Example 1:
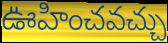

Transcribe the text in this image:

ఊహించవచ్చు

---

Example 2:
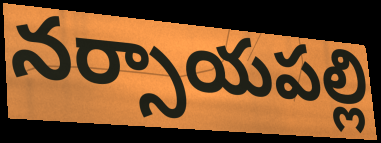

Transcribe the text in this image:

నర్సాయపల్లి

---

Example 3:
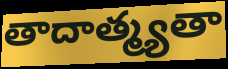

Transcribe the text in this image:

తాదాత్మ్యతా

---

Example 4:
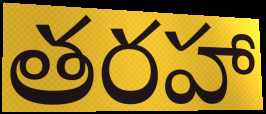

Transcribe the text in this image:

తరహా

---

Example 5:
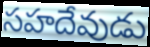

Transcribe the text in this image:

సహదేవుడు